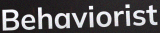
Behaviorist